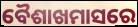
ବୈଶାଖମାସରେ